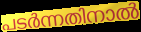
പടർന്നതിനാൽ